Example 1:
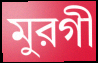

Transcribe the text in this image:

মুরগী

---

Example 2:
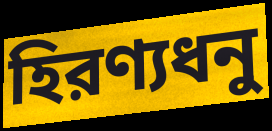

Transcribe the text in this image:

হিরণ্যধনু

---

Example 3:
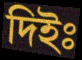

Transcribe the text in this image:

দিইঃ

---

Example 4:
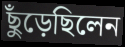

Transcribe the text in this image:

ছুঁড়েছিলেন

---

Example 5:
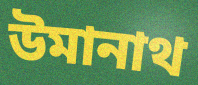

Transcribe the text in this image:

উমানাথ